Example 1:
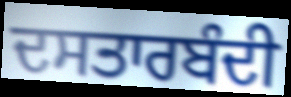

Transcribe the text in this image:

ਦਸਤਾਰਬੰਦੀ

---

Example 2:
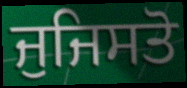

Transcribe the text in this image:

ਜੁਜਿਸਤੋ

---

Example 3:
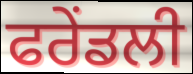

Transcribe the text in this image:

ਫਰੇਂਡਲੀ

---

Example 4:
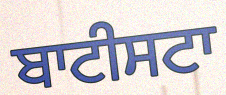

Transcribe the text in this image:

ਬਾਟੀਸਟਾ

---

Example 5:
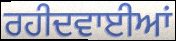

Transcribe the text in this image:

ਰਹੀਦਵਾਈਆਂ